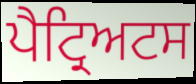
ਪੈਟ੍ਰਿਅਟਸ